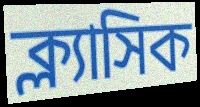
ক্ল্যাসিক